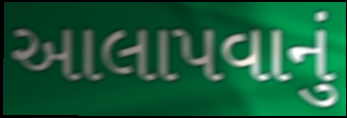
આલાપવાનું